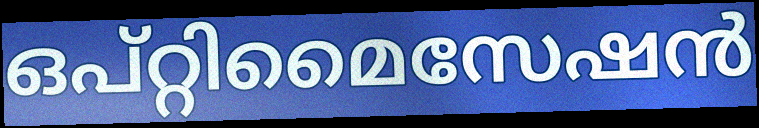
ഒപ്റ്റിമൈസേഷൻ